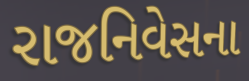
રાજનિવેસના